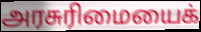
அரசுரிமையைக்